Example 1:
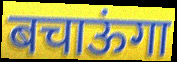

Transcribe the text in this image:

बचाऊंगा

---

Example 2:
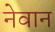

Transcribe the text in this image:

नेवान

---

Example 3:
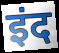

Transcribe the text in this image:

इंद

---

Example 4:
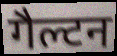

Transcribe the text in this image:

गैल्टन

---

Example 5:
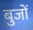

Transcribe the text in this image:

बुजों